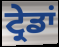
ਟ੍ਰੇਡਾਂ